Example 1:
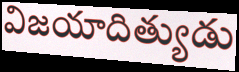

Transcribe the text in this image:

విజయాదిత్యుడు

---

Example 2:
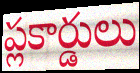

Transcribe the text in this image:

ప్లకార్డులు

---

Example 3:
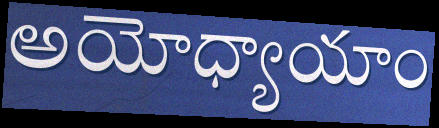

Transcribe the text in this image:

అయోధ్యాయాం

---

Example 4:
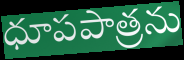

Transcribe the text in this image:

ధూపపాత్రను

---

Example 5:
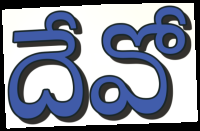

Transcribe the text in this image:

దేవో